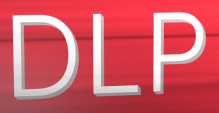
DLP